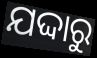
ଯଦ୍ଦାରୁ